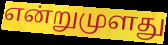
என்றுமுளது